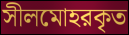
সীলমোহরকৃত